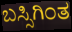
ಬಸ್ಸಿಗಿಂತ